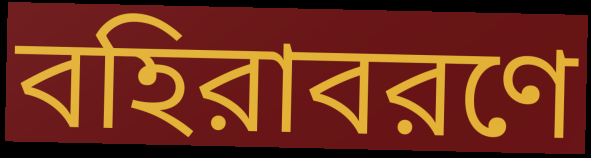
বহিরাবরণে